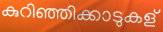
കുറിഞ്ഞിക്കാടുകള്